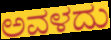
ಅವಳದು